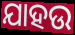
ଯାହଉ